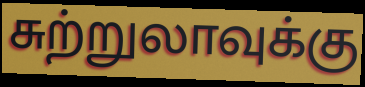
சுற்றுலாவுக்கு